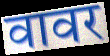
वावर